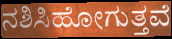
ನಶಿಸಿಹೋಗುತ್ತವೆ